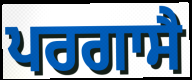
ਪਰਗਾਸੈ